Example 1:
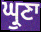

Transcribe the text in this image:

ਘ੍ਰੁਣਾ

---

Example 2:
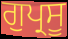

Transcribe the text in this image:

ਗੁਪ੍ਰਸੂ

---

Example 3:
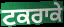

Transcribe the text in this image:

ਟਕਰਾਕੇ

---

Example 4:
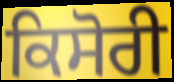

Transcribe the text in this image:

ਕਿਸੋਰੀ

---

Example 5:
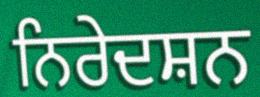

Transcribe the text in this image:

ਨਿਰੇਦਸ਼ਨ